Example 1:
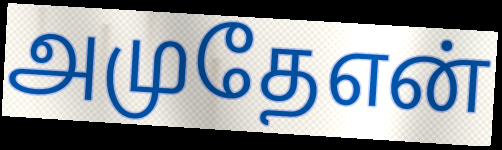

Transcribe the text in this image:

அமுதேஎன்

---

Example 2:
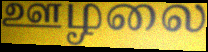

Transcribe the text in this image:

ஊழலை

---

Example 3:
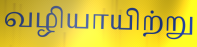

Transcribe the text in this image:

வழியாயிற்று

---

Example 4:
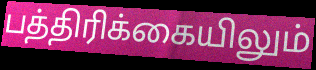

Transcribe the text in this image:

பத்திரிக்கையிலும்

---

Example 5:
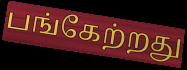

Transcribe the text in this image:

பங்கேற்றது